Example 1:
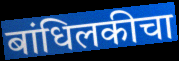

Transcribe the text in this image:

बांधिलकीचा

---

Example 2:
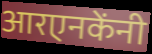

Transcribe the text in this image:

आरएनकेंनी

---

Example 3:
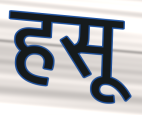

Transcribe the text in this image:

हसू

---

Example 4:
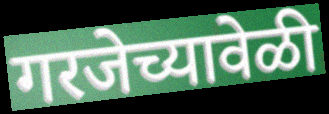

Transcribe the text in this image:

गरजेच्यावेळी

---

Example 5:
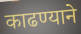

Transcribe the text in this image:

काढण्याने